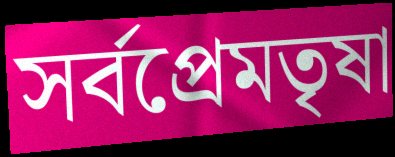
সর্বপ্রেমতৃষা